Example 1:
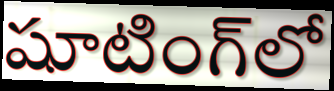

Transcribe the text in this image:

షూటింగ్‌లో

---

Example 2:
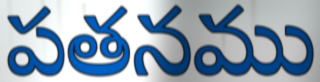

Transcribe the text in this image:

పతనము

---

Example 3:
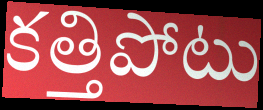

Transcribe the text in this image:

కత్తిపోటు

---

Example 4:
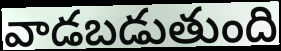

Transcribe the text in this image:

వాడబడుతుంది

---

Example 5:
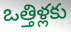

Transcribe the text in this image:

ఒత్తిళ్లకు